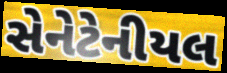
સેનેટેનીયલ